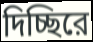
দিচ্ছিরে